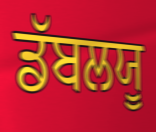
ਡੱਬਲਯੂ